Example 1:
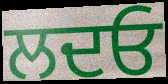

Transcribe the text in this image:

ਲਦਓ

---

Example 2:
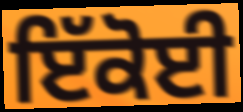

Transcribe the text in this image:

ਇੱਕੋਈ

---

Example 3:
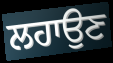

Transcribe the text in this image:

ਲਹਾਉਣ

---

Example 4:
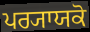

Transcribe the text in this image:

ਪਰ੍ਯਾਯਕੋ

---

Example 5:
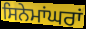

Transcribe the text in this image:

ਸਿਨੇਮਾਂਘਰਾਂ